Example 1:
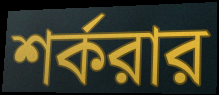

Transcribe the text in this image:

শর্করার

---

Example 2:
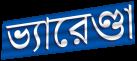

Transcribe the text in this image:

ভ্যারেণ্ডা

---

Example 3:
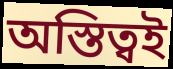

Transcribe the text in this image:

অস্তিত্বই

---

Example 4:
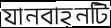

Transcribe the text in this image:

যানবাহনটি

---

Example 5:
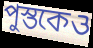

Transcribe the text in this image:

পুস্তকেও